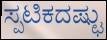
ಸ್ಪಟಿಕದಷ್ಟು